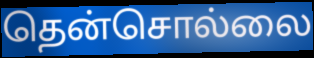
தென்சொல்லை